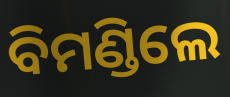
ବିମଣ୍ଡିଲେ